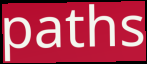
paths